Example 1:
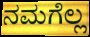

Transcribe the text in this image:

ನಮಗೆಲ್ಲ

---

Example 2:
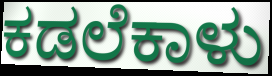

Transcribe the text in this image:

ಕಡಲೆಕಾಳು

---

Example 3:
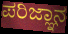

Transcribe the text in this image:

ಪರಿಜ್ಞಾನ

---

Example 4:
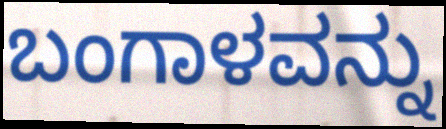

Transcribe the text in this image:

ಬಂಗಾಳವನ್ನು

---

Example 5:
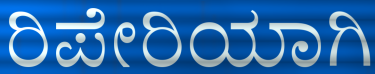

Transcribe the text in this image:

ರಿಪೇರಿಯಾಗಿ